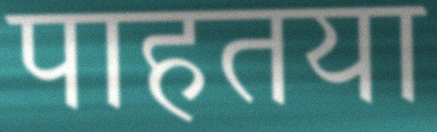
पाहतया